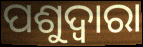
ପଶୁଦ୍ୱାରା